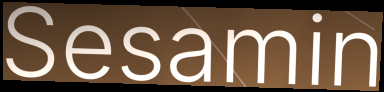
Sesamin